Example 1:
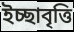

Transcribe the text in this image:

ইচ্ছাবৃত্তি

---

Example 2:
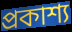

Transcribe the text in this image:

প্রকাশ্য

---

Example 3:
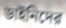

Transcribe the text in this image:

ডাইনিদের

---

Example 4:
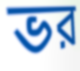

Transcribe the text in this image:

ভর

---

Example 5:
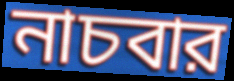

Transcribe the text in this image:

নাচবার